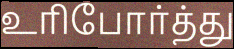
உரிபோர்த்து